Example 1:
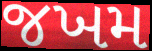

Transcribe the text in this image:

જખમ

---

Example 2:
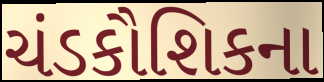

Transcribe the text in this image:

ચંડકૌશિકના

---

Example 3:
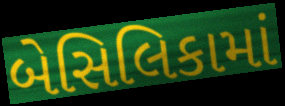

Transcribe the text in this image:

બેસિલિકામાં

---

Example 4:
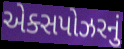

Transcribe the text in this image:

એક્સપોઝરનું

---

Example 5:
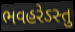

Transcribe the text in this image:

ભવહરેઽસ્તુ